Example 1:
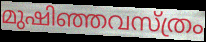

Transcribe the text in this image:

മുഷിഞ്ഞവസ്ത്രം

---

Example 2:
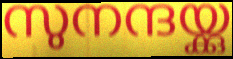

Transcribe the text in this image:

സുനന്ദയ്ക്കു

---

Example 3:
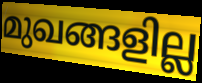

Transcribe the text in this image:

മുഖങ്ങളില്ല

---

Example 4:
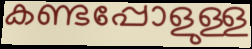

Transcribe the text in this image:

കണ്ടപ്പോളുള്ള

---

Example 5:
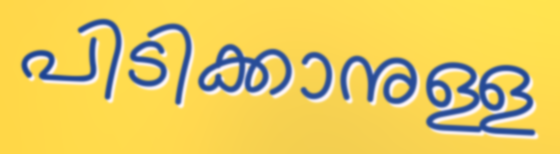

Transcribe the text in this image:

പിടിക്കാനുള്ള